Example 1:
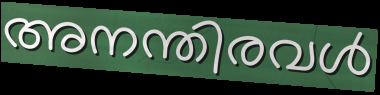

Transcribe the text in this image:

അനന്തിരവൾ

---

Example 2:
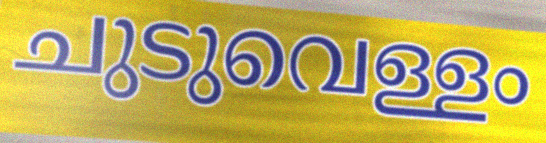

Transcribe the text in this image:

ചുടുവെള്ളം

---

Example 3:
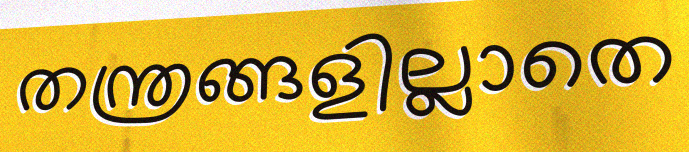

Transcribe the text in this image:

തന്ത്രങ്ങളില്ലാതെ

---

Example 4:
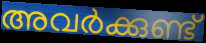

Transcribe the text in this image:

അവർക്കുണ്ട്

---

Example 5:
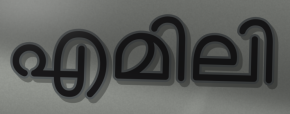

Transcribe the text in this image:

എമിലി